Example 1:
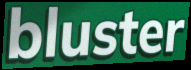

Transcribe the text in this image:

bluster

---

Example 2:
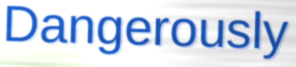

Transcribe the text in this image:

Dangerously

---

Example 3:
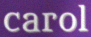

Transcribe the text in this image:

carol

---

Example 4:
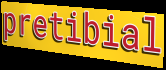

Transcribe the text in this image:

pretibial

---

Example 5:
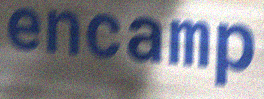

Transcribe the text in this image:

encamp